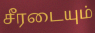
சீரடையும்